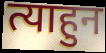
त्याहुन